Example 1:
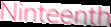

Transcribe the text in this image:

Ninteenth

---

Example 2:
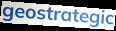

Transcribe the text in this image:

geostrategic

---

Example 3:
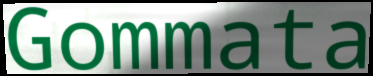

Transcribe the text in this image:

Gommata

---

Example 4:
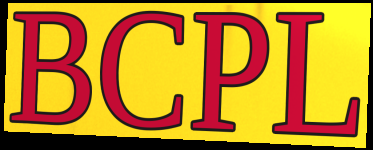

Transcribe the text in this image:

BCPL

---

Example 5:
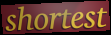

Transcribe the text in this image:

shortest